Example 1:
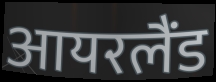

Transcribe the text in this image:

आयरलैंड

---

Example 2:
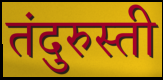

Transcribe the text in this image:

तंदुरुस्ती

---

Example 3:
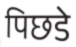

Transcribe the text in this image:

पिछडे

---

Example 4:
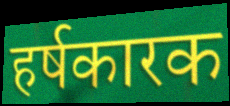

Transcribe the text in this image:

हर्षकारक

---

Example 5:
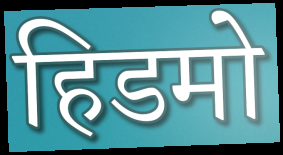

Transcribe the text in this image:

हिडमो